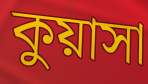
কুয়াসা